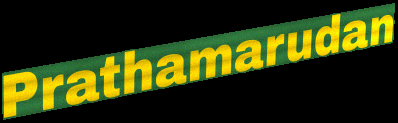
Prathamarudan